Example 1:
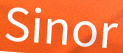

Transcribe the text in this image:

Sinor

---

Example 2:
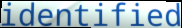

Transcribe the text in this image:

identified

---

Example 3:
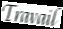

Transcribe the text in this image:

Travail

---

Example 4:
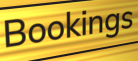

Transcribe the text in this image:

Bookings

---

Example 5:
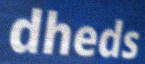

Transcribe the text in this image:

dheds